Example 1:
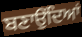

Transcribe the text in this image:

ਬਣਾਉਂਦਿਆਂ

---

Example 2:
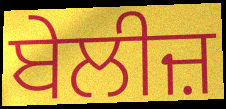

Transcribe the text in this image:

ਬੇਲੀਜ਼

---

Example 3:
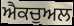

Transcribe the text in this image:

ਐਕਚੁਅਲ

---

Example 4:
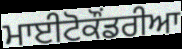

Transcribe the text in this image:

ਮਾਈਟੋਕੌਂਡਰੀਆ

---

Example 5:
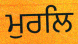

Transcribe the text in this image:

ਮੁਰਲਿ